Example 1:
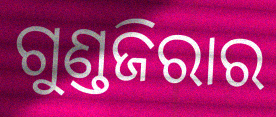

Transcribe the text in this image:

ଗୁଣ୍ଡଜିରାର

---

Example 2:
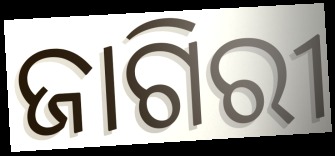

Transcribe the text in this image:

ଜାଗିରୀ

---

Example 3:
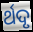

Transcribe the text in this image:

ର୍ଥଦୃ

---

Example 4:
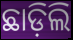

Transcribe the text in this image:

ଛାଡ଼ିଲି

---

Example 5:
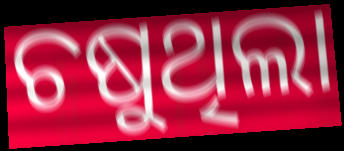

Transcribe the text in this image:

ଚଷୁଥିଲା